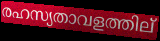
രഹസ്യതാവളത്തില്